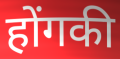
होंगकी